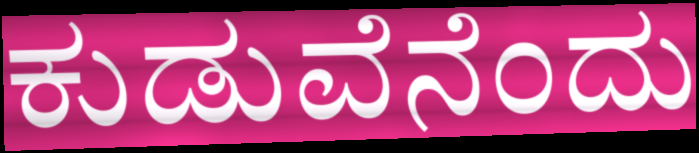
ಕುಡುವೆನೆಂದು